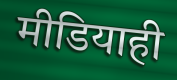
मीडियाही